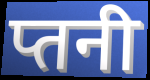
प्तनी